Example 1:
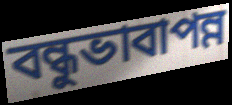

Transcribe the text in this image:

বন্ধুভাবাপন্ন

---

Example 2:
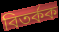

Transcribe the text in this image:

বিতৰ্কক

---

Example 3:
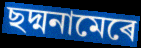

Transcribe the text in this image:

ছদ্মনামেৰে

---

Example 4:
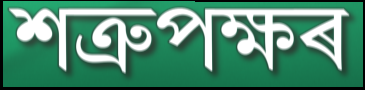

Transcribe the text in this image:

শত্ৰুপক্ষৰ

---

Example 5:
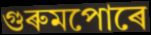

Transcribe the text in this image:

গুৰুমপোৰে